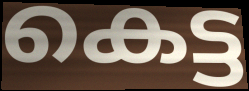
കെട്ട